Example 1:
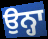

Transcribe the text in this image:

ਉਨ੍ਹਾ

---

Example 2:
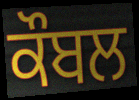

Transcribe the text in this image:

ਕੌਬਲ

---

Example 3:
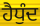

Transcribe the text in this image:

ਹੈਧੁੰਦ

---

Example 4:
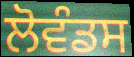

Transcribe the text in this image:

ਲੋਵੰਡਸ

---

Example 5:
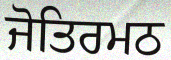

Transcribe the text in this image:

ਜੋਤਿਰਮਠ